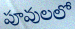
పూవులలో